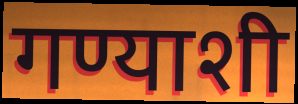
गण्याशी